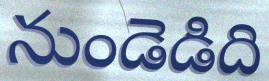
నుండెడిది